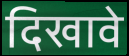
दिखावे